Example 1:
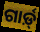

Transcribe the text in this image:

ଗାର୍ଡ଼୍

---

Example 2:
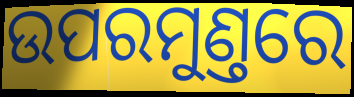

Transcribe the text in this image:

ଉପରମୁଣ୍ତରେ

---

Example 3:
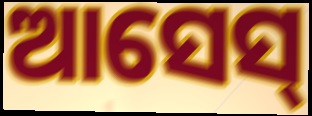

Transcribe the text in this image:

ଆସେସ୍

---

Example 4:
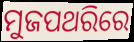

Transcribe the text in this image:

ମୁଜପଥରିରେ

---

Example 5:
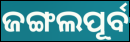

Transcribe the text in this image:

ଜଙ୍ଗଲପୂର୍ବ